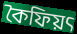
কৈফিয়ৎ